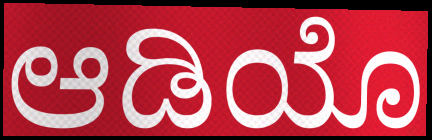
ಆಡಿಯೊ